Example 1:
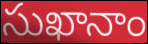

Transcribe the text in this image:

సుఖానాం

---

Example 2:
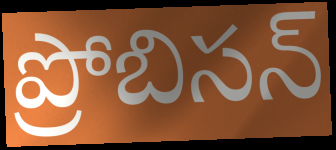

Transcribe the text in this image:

ప్రోబిసన్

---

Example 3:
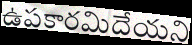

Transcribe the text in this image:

ఉపకారమిదేయని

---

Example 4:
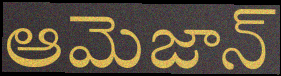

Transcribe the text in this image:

ఆమెజాన్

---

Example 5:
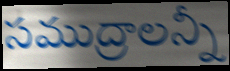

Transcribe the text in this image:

సముద్రాలన్నీ